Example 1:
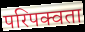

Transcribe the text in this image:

परिपक्‍वता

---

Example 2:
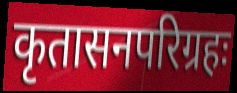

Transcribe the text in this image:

कृतासनपरिग्रहः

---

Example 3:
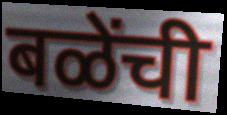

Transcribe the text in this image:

बळेंची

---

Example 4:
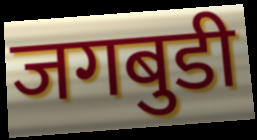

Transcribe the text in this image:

जगबुडी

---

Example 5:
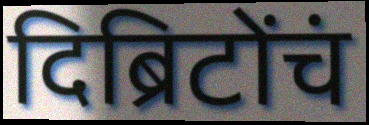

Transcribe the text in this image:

दिब्रिटोंचं